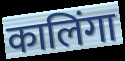
कालिंगा